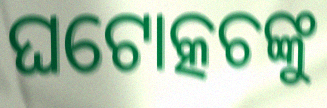
ଘଟୋତ୍କଚଙ୍କୁ